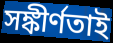
সঙ্কীর্ণতাই